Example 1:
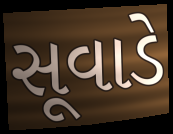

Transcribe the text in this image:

સૂવાડે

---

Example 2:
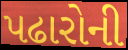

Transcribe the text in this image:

પઢારોની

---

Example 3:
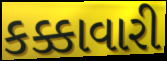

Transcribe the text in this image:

કક્કાવારી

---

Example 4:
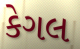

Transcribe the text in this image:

કેગલ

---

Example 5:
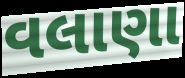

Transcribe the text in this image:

વલાણા